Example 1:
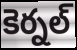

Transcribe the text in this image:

కెర్నల్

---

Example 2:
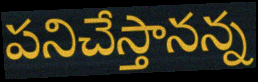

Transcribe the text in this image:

పనిచేస్తానన్న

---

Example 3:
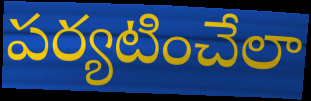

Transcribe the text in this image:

పర్యటించేలా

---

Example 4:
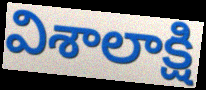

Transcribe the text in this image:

విశాలాక్షి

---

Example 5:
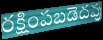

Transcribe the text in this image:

రక్షింపబడెదవు